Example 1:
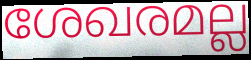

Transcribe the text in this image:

ശേഖരമല്ല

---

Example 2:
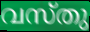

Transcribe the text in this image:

വസ്തു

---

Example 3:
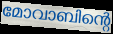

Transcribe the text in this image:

മോവാബിന്റെ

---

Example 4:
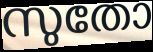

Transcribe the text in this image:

സുതോ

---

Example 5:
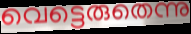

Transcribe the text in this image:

വെട്ടെരുതെന്നു